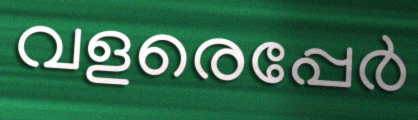
വളരെപ്പേർ